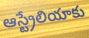
ఆస్ట్రేలియాకు